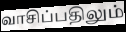
வாசிப்பதிலும்